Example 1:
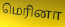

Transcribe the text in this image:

மெரினா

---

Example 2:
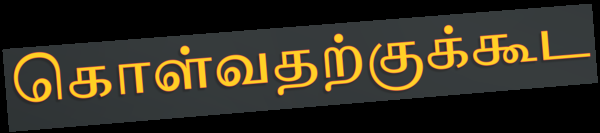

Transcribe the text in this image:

கொள்வதற்குக்கூட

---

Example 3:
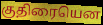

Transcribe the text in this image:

குதிரையென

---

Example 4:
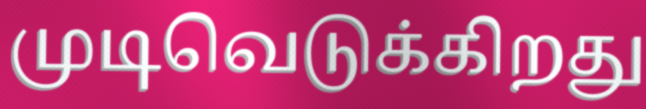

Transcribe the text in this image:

முடிவெடுக்கிறது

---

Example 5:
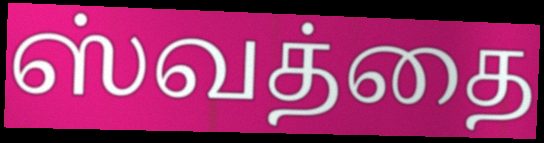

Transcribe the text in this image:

ஸ்வத்தை